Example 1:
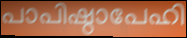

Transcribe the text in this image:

പാപിഷ്ഠാപേഹി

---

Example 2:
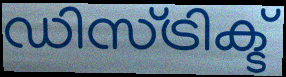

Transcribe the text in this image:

ഡിസ്ട്രിക്ട്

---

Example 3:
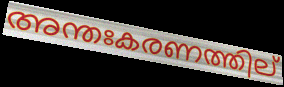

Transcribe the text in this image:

അന്തഃകരണത്തില്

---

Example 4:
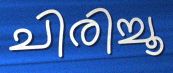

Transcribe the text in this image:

ചിരിച്ചൂ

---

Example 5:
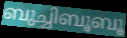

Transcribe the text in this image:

ബുച്ചിബൂബൂ